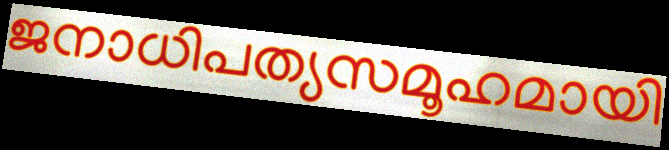
ജനാധിപത്യസമൂഹമായി